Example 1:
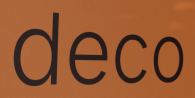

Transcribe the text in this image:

deco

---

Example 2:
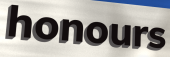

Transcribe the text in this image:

honours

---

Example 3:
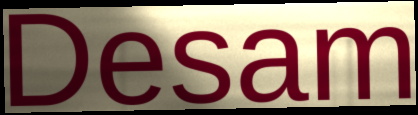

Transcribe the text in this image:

Desam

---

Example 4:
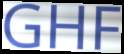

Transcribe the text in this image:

GHF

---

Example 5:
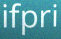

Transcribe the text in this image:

ifpri